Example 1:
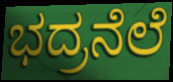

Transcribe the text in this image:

ಭದ್ರನೆಲೆ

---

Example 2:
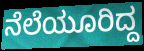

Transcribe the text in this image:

ನೆಲೆಯೂರಿದ್ದ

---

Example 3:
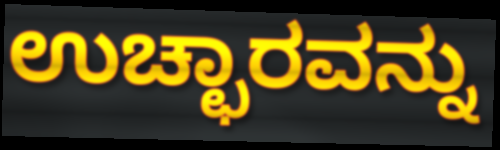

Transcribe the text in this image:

ಉಚ್ಛಾರವನ್ನು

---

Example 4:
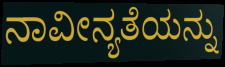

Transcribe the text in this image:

ನಾವೀನ್ಯತೆಯನ್ನು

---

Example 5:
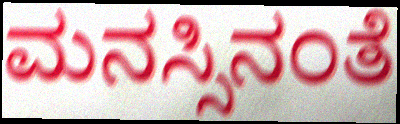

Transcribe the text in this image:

ಮನಸ್ಸಿನಂತೆ